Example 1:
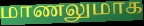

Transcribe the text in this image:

மாணலுமாக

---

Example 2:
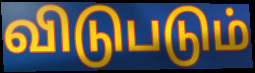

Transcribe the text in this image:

விடுபடும்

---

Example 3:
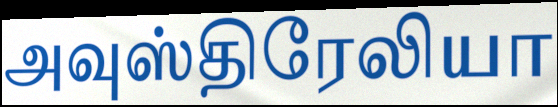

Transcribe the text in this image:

அவுஸ்திரேலியா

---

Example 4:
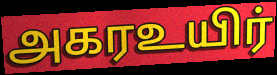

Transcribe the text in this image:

அகரஉயிர்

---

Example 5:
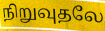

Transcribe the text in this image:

நிறுவுதலே